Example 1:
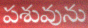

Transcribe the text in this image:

పశువును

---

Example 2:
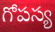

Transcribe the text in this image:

గోపస్య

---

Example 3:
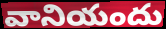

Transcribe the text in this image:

వానియందు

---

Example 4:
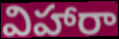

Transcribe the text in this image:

విహారా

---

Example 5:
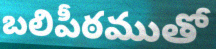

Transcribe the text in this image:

బలిపీఠముతో